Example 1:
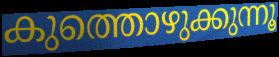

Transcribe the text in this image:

കുത്തൊഴുക്കുന്നൂ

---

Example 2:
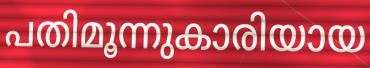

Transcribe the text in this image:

പതിമൂന്നുകാരിയായ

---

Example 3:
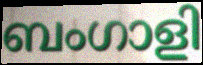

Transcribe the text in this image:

ബംഗാളി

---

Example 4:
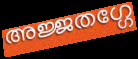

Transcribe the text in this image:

അജ്ജതഗ്ഗേ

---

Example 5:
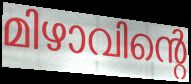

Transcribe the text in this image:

മിഴാവിന്റെ